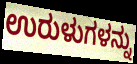
ಉರುಳುಗಳನ್ನು